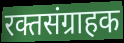
रक्तसंग्राहक